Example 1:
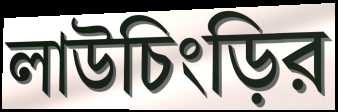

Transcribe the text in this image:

লাউচিংড়ির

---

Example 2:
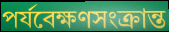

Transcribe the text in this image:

পর্যবেক্ষণসংক্রান্ত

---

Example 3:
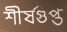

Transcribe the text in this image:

শীর্ষগুপ্ত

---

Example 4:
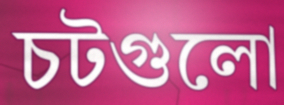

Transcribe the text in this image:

চটগুলো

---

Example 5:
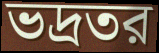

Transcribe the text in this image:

ভদ্রতর